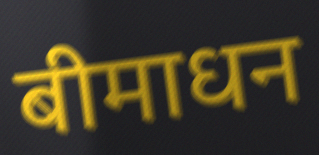
बीमाधन